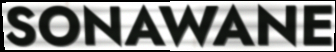
SONAWANE